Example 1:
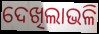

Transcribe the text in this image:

ଦେଖିଲାଭଳି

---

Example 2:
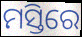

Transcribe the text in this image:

ମସ୍ତିରେ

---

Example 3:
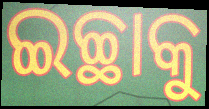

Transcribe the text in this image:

ଇଚ୍ଛାକୁ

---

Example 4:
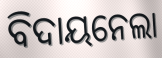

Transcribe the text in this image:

ବିଦାୟନେଲା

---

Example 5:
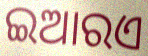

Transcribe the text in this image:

ଇଆରଏ